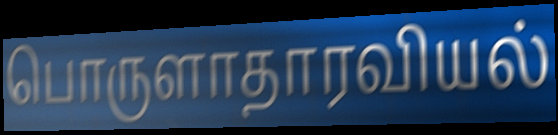
பொருளாதாரவியல்